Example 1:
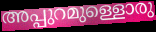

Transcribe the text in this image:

അപ്പുറമുള്ളൊരു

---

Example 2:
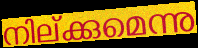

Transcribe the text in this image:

നില്ക്കുമെന്നു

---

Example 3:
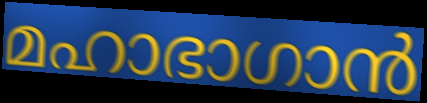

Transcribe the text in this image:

മഹാഭാഗാൻ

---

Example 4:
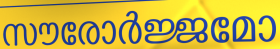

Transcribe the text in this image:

സൗരോർജ്ജമോ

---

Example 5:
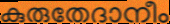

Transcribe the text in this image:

കുരുതേദാനീം